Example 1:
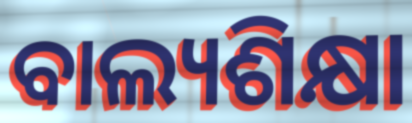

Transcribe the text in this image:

ବାଲ୍ୟଶିକ୍ଷା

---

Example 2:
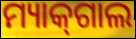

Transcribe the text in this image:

ମ୍ୟାକ୍‌ଗାଲ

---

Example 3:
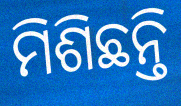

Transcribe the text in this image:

ମିଶିଛନ୍ତି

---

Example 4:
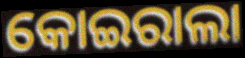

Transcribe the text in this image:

କୋଇରାଲା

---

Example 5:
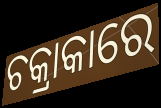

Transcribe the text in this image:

ଚକ୍ରାକାରେ